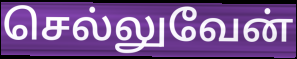
செல்லுவேன்